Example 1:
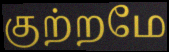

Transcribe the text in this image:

குற்றமே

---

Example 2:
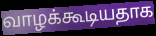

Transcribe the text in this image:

வாழக்கூடியதாக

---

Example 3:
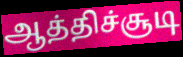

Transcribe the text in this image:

ஆத்திச்சூடி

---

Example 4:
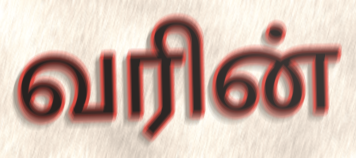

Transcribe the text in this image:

வரின்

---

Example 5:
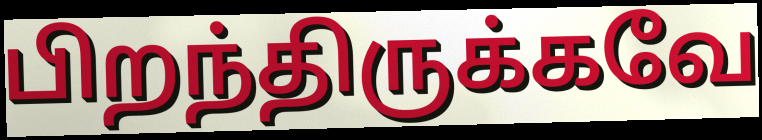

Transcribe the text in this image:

பிறந்திருக்கவே